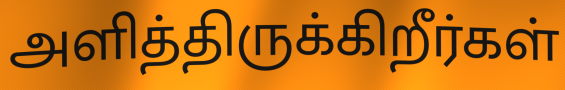
அளித்திருக்கிறீர்கள்